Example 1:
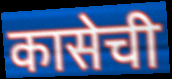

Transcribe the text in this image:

कासेची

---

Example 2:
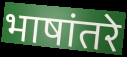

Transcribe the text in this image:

भाषांतरे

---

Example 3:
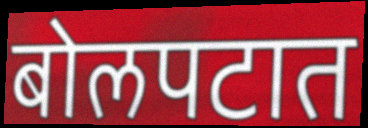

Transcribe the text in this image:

बोलपटात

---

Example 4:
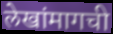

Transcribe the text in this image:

लेखांमागची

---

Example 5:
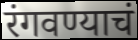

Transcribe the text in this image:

रंगवण्याचं